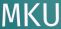
MKU